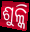
ଶୁଳ୍କି